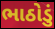
ભાઠોડું